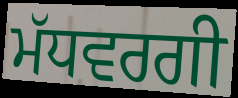
ਮੱਧਵਰਗੀ